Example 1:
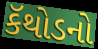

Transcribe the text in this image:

કૅથોડનો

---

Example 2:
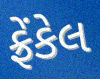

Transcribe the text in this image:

ફ્રેંકેલ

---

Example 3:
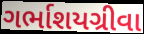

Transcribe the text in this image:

ગર્ભાશયગ્રીવા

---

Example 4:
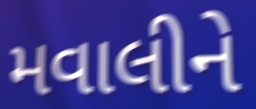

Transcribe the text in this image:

મવાલીને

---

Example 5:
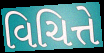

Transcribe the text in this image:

વિચિત્તે